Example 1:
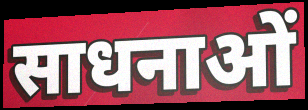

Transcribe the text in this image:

साधनाओं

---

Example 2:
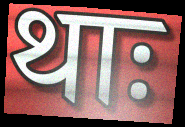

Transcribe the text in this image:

थाः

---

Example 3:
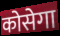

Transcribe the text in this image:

कोसेगा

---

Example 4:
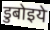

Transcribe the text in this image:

डुबोइये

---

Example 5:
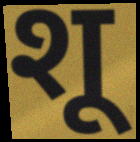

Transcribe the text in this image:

शू